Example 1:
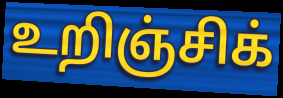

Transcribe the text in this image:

உறிஞ்சிக்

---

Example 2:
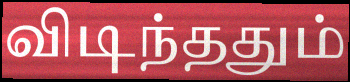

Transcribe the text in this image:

விடிந்ததும்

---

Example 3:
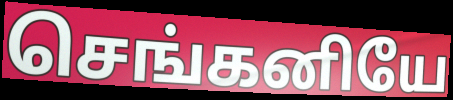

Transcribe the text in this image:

செங்கனியே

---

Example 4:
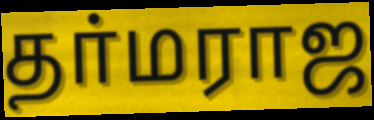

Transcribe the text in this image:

தர்மராஜ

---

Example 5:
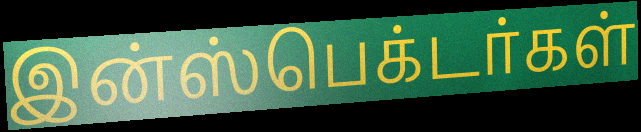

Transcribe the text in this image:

இன்ஸ்பெக்டர்கள்